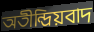
অতীন্দ্রিয়বাদ